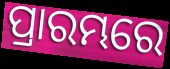
ପ୍ରାରମ୍ଭରେ